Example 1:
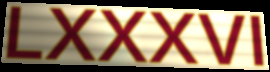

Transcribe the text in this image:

LXXXVI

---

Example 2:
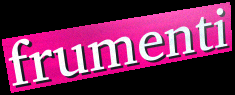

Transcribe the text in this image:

frumenti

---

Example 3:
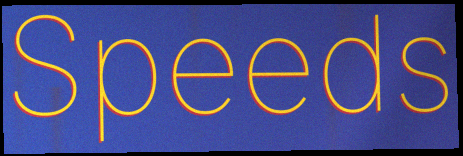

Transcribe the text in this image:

Speeds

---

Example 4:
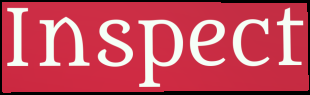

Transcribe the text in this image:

Inspect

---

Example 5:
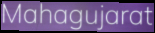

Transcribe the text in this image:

Mahagujarat